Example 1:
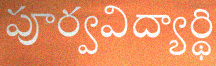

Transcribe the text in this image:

పూర్వవిద్యార్థి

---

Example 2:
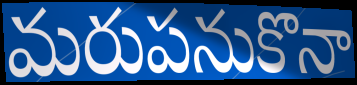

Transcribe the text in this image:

మరుపనుకొనా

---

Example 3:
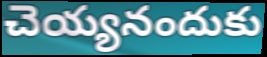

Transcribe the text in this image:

చెయ్యనందుకు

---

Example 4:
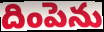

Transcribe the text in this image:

దింపెను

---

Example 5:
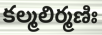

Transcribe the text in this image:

కల్మలిర్మణిః